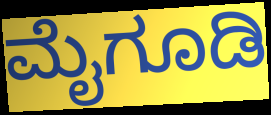
ಮೈಗೂಡಿ